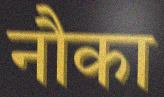
नौका